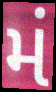
મં